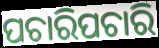
ପଚାରିପଚାରି